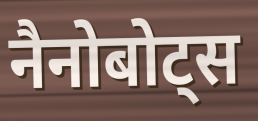
नैनोबोट्स